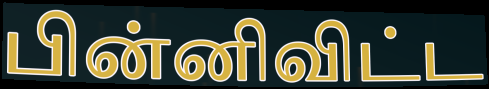
பின்னிவிட்ட